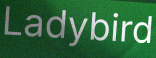
Ladybird